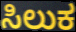
ಸಿಲುಕ